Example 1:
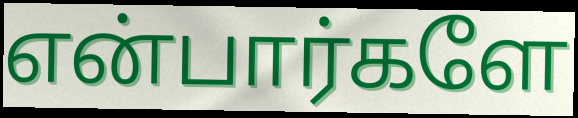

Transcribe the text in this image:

என்பார்களே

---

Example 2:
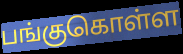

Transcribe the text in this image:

பங்குகொள்ள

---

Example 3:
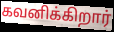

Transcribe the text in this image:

கவனிக்கிறார்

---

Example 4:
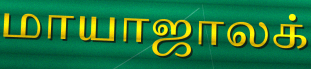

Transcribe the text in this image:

மாயாஜாலக்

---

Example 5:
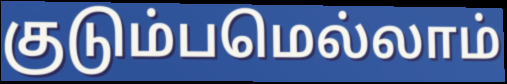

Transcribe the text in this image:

குடும்பமெல்லாம்